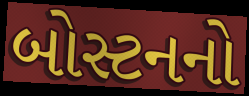
બોસ્ટનનો